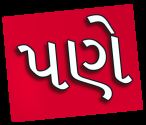
પણે